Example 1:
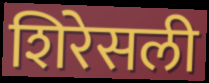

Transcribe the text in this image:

शिरेसली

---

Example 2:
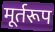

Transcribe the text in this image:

मूर्तरूप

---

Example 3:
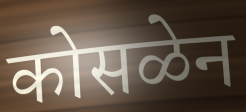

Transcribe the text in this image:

कोसळेन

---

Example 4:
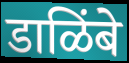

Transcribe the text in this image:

डाळिंबे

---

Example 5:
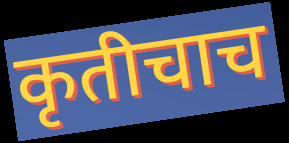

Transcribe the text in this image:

कृतीचाच